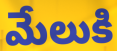
మేలుకి